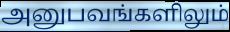
அனுபவங்களிலும்